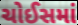
ચોઈસમાં